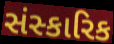
સંસ્કારિક